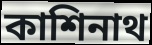
কাশিনাথ